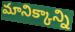
మానిక్కాన్ని